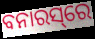
ବନାରସ୍‌ରେ